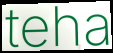
teha